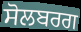
ਸੋਲਬਰਗ